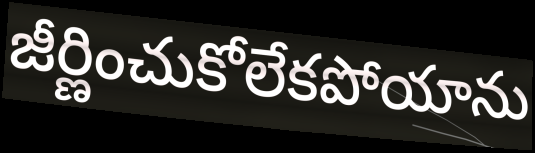
జీర్ణించుకోలేకపోయాను